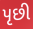
પૃછી